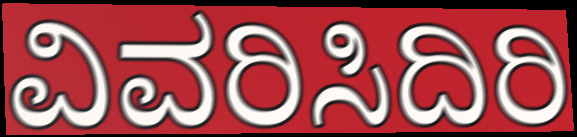
ವಿವರಿಸಿದಿರಿ